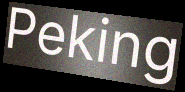
Peking